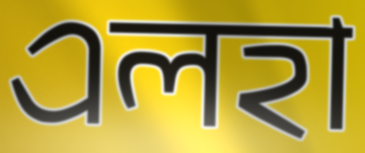
এলহা